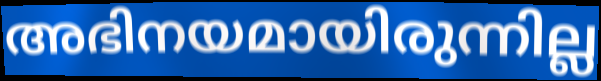
അഭിനയമായിരുന്നില്ല